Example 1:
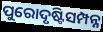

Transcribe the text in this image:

ପୁରୋଦୃଷ୍ଟିସମ୍ପନ୍ନ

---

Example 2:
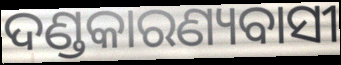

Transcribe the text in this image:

ଦଣ୍ଡକାରଣ୍ୟବାସୀ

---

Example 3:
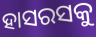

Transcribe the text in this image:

ହାସରସକୁ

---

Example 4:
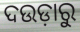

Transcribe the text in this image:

ଦଉଡ଼ାରୁ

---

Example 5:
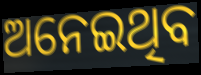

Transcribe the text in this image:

ଅନେଇଥିବ